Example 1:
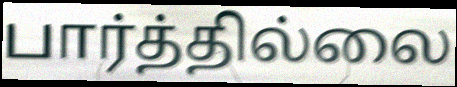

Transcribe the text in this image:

பார்த்தில்லை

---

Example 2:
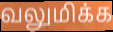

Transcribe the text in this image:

வலுமிக்க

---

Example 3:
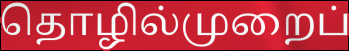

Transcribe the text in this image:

தொழில்முறைப்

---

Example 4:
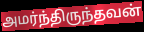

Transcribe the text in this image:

அமர்ந்திருந்தவன்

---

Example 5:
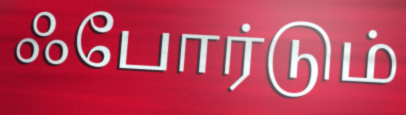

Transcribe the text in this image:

ஃபோர்டும்